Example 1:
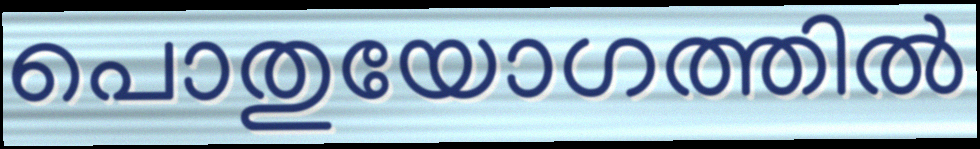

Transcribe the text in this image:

പൊതുയോഗത്തിൽ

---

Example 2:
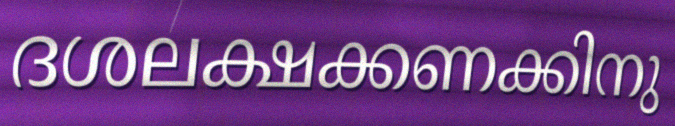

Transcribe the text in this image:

ദശലക്ഷക്കണക്കിനു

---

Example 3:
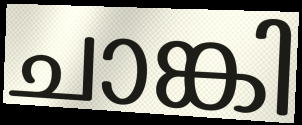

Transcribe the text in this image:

ചാങ്കി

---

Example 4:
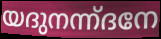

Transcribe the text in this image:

യദുനന്ന്ദനേ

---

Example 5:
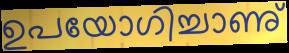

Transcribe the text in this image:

ഉപയോഗിച്ചാണു്